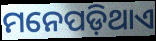
ମନେପଡ଼ିଥାଏ